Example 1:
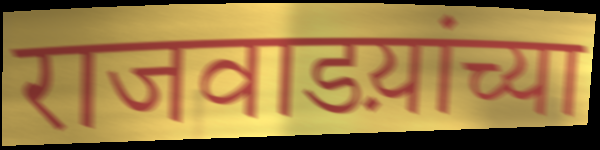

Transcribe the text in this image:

राजवाडय़ांच्या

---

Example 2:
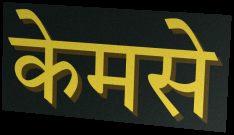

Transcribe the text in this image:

केमसे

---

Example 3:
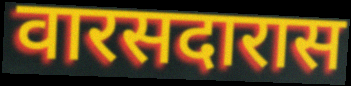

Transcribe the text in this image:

वारसदारास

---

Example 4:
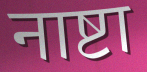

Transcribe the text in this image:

नाष्टा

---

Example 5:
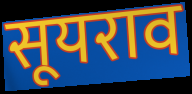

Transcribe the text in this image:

सूयराव